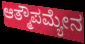
ಆತ್ಮೌಪಮ್ಯೇನ